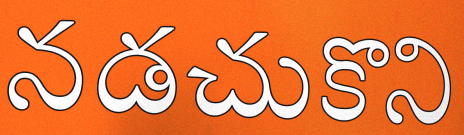
నడచుకొని